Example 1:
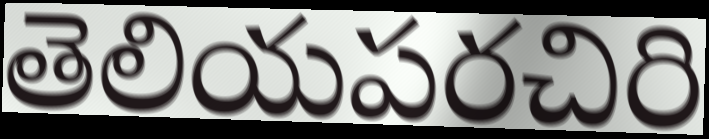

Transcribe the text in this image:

తెలియపరచిరి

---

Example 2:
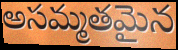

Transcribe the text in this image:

అసమ్మతమైన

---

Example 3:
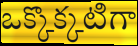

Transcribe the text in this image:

ఒక్కొక్కటిగా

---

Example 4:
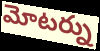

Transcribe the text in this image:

మోటర్ను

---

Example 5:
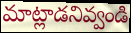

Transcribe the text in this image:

మాట్లాడనివ్వండి